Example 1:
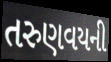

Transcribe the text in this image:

તરુણવયની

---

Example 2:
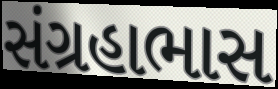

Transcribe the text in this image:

સંગ્રહાભાસ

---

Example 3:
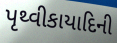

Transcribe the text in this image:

પૃથ્વીકાયાદિની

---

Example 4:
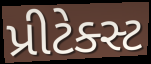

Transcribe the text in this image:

પ્રીટેક્સ્ટ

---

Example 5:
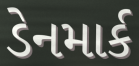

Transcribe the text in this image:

ડેનમાર્ક